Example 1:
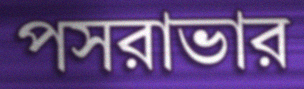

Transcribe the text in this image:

পসরাভার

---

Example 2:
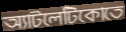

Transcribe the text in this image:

অ্যাটলেটিকোতে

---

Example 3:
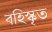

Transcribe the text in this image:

বহিস্কৃত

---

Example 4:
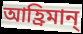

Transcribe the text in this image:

আহ্রিমান্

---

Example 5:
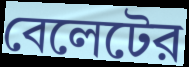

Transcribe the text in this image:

বেলেটের